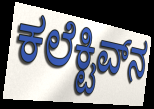
ಕಲೆಕ್ಟಿವ್‌ನ